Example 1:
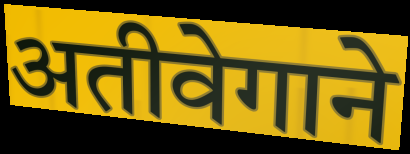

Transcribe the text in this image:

अतीवेगाने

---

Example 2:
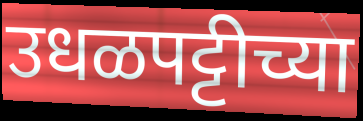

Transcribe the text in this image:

उधळपट्टीच्या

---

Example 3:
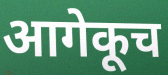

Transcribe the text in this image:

आगेकूच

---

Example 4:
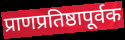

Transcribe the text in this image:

प्राणप्रतिष्ठापूर्वक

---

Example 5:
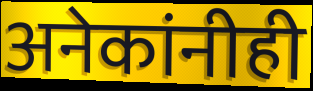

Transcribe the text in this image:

अनेकांनीही